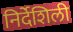
निर्देशिली